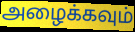
அழைக்கவும்